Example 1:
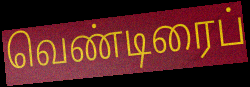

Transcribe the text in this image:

வெண்டிரைப்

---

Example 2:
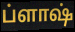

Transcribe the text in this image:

ப்ளாஷ்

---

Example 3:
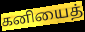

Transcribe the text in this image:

கனியைத்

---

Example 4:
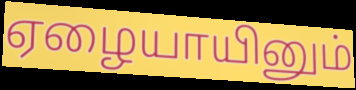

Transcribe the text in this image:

ஏழையாயினும்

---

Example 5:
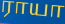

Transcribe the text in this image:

ராயா